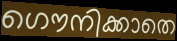
ഗൌനിക്കാതെ